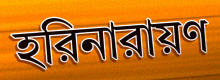
হরিনারায়ণ